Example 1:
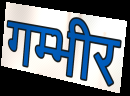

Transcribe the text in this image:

गम्भीर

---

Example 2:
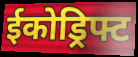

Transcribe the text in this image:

ईकोड्रिफ्ट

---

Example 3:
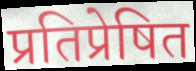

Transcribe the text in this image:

प्रतिप्रेषित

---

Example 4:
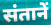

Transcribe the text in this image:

संतानें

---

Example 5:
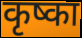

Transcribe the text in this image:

कृष्का